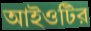
আইওটির